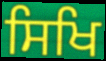
ਸਿਖਿ